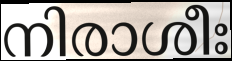
നിരാശീഃ